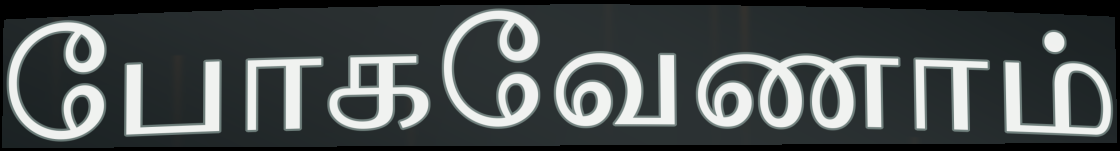
போகவேணாம்